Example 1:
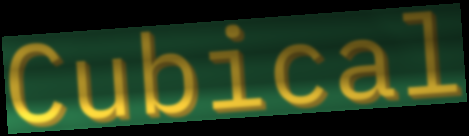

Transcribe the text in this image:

Cubical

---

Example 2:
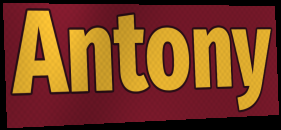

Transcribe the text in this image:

Antony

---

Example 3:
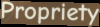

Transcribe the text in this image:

Propriety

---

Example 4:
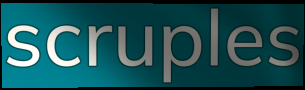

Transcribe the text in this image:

scruples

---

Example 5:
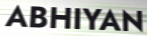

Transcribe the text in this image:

ABHIYAN